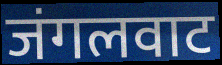
जंगलवाट